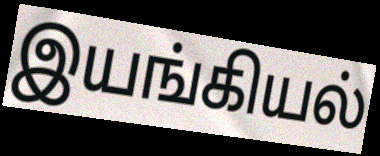
இயங்கியல்